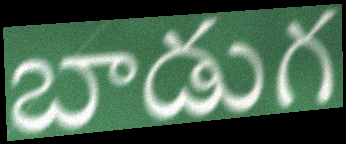
బాడుగ